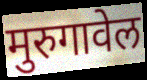
मुरुगावेल